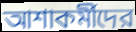
আশাকর্মীদের